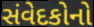
સંવેદકોનો